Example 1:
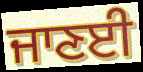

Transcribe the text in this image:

ਜਾਣਈ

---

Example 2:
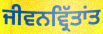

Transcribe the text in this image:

ਜੀਵਨਵ੍ਰਿੱਤਾਂਤ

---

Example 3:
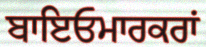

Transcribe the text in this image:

ਬਾਇਓਮਾਰਕਰਾਂ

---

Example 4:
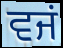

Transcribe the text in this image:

ਵਜਂ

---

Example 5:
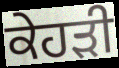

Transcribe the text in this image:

ਕੇਹੜੀ